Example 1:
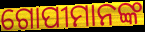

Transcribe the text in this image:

ଗୋପୀମାନଙ୍କ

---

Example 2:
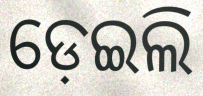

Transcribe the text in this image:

ଡ଼େଇଲି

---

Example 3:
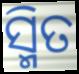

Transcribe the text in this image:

ସ୍ମିତ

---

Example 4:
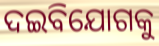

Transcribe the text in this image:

ଦଇବିଯୋଗକୁ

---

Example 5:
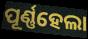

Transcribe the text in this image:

ପୂର୍ଣ୍ଣହେଲା